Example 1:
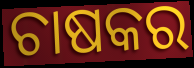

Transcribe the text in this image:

ଚାଷକର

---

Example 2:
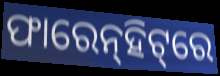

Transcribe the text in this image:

ଫାରେନ୍‌ହିଟ୍‌ରେ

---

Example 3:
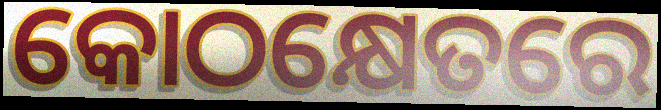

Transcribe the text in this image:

କୋଠକ୍ଷେତରେ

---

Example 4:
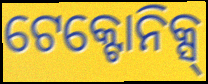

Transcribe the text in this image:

ଟେକ୍ଟୋନିକ୍ସ୍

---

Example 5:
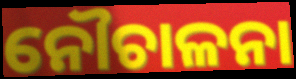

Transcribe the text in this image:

ନୌଚାଳନା